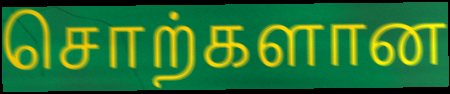
சொற்களான